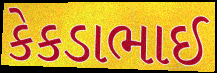
કેકડાભાઈ